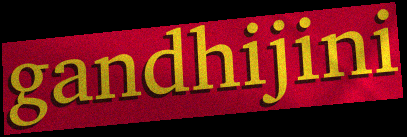
gandhijini